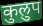
कुलुप